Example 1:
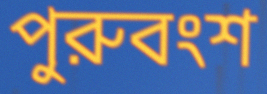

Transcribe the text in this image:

পুরুবংশ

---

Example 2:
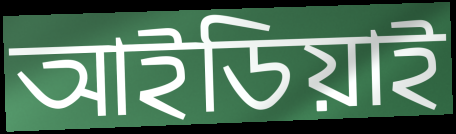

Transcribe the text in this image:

আইডিয়াই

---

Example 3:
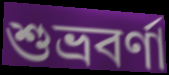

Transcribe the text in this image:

শুভ্রবর্ণা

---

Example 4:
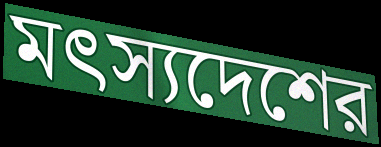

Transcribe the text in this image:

মৎস্যদেশের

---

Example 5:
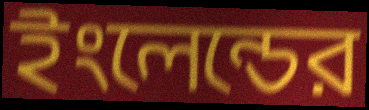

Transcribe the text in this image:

ইংলেন্ডের